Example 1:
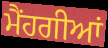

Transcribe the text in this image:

ਮੈਂਹਗੀਆਂ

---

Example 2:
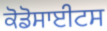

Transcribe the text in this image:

ਕੋਡੋਸਾਈਟਸ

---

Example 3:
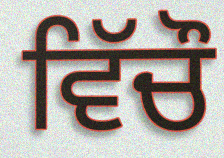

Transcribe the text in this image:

ਵਿੱਚੌ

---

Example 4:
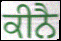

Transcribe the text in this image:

ਕੀਨੈ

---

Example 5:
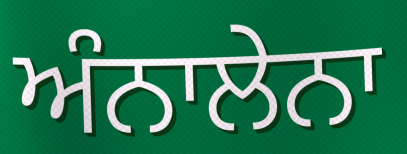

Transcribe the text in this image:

ਅੰਨਾਲੇਨਾ